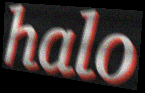
halo